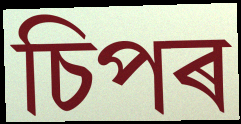
চিপৰ